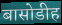
बासोडीह